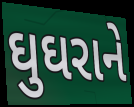
ઘુઘરાને